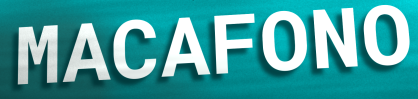
MACAFONO